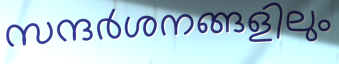
സന്ദർശനങ്ങളിലും